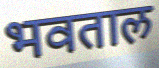
भवताल